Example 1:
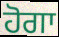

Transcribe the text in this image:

ਹੋਗਾ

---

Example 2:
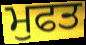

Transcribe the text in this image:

ਮੁਫਤ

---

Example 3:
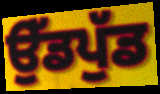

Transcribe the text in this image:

ਉੱਡਪੁੱਡ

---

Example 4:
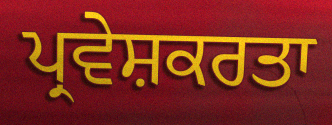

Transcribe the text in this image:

ਪ੍ਰਵੇਸ਼ਕਰਤਾ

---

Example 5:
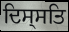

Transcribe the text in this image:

ਦਿਸ੍ਸਤਿ